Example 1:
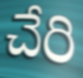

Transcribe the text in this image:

చేరి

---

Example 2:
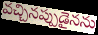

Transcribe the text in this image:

వచ్చినప్పుడైనను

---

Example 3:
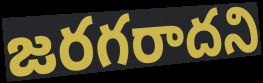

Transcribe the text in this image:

జరగరాదని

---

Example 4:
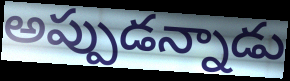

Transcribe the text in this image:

అప్పుడన్నాడు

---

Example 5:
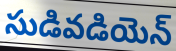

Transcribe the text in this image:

సుడివడియెన్